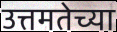
उत्तमतेच्या